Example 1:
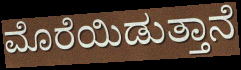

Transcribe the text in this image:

ಮೊರೆಯಿಡುತ್ತಾನೆ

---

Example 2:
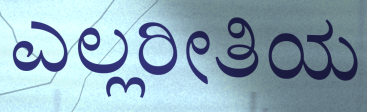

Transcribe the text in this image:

ಎಲ್ಲರೀತಿಯ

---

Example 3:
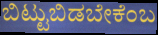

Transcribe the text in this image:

ಬಿಟ್ಟುಬಿಡಬೇಕೆಂಬ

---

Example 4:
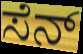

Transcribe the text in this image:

ಸೆನ್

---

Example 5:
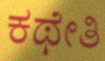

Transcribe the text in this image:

ಕಥೇತಿ